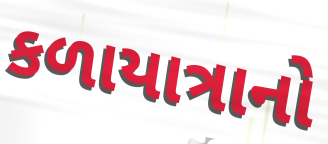
કળાયાત્રાનો